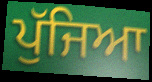
ਪੁੱਜਿਆ